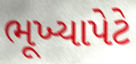
ભૂખ્યાપેટે